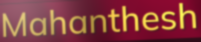
Mahanthesh